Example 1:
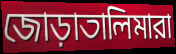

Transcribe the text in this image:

জোড়াতালিমারা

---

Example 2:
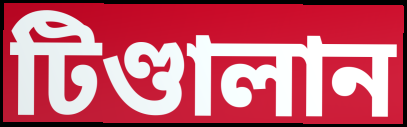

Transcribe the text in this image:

টিণ্ডালান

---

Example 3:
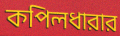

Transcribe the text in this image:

কপিলধারার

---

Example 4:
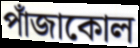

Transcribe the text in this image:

পাঁজাকোল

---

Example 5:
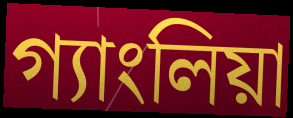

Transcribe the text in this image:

গ্যাংলিয়া